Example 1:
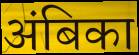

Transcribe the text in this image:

अंबिका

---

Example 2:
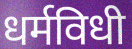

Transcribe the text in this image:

धर्मविधी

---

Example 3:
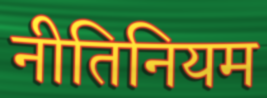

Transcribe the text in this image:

नीतिनियम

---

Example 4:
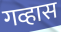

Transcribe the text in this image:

गव्हास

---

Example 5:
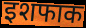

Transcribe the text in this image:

इशफाक